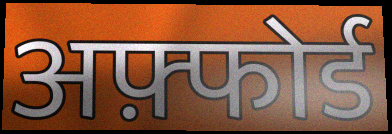
अफ़्फोर्ड